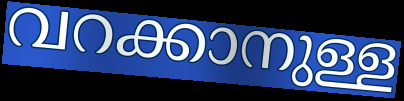
വറക്കാനുള്ള